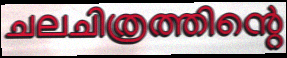
ചലചിത്രത്തിന്റെ